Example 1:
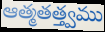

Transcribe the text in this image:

ఆత్మతత్త్వము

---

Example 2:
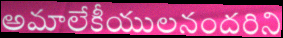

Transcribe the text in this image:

అమాలేకీయులనందరిని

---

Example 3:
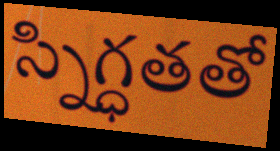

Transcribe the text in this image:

స్నిగ్ధతతో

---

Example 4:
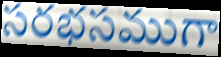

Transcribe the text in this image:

సరభసముగా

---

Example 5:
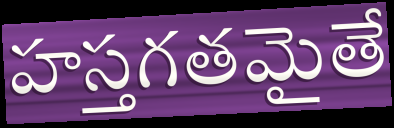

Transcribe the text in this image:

హస్తగతమైతే